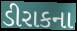
ડીરાકના